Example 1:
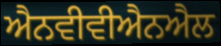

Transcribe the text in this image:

ਐਨਵੀਵੀਐਨਐਲ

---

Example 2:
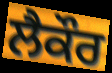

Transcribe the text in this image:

ਲੈਕੌਰ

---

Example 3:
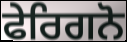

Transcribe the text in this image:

ਫੇਰਿਗਨੋ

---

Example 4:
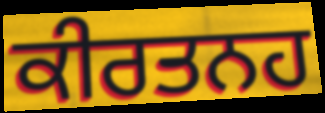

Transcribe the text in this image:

ਕੀਰਤਨਹ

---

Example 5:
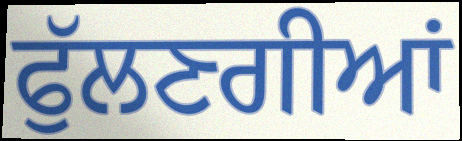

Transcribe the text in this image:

ਫੁੱਲਣਗੀਆਂ